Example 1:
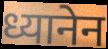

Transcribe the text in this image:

ध्यानेन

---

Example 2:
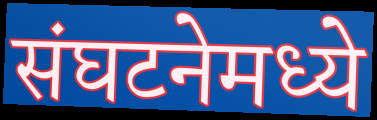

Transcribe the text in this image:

संघटनेमध्ये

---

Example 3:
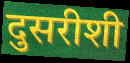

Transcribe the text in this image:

दुसरीशी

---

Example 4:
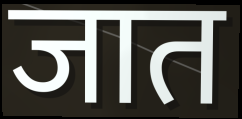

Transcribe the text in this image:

जात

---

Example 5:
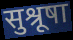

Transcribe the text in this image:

सुश्रूषा